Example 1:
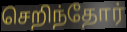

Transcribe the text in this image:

செறிந்தோர்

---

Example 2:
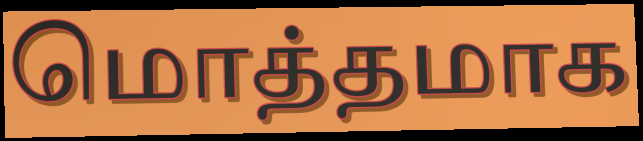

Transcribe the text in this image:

மொத்தமாக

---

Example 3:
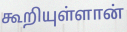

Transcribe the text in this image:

கூறியுள்ளான்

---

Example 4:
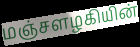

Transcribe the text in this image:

மஞ்சளழகியின்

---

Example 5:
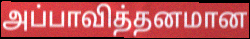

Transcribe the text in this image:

அப்பாவித்தனமான